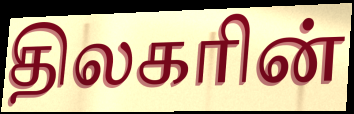
திலகரின்